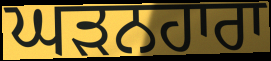
ਘੜਨਹਾਰਾ